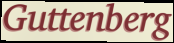
Guttenberg